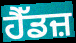
ਹੈੱਡਜ਼